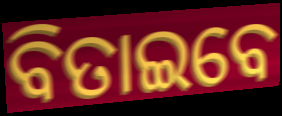
ବିତାଇବେ